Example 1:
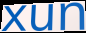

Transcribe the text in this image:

xun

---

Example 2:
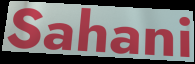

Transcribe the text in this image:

Sahani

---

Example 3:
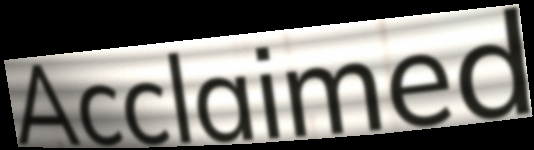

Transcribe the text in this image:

Acclaimed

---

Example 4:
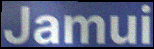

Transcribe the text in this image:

Jamui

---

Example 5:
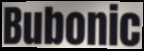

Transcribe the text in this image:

Bubonic